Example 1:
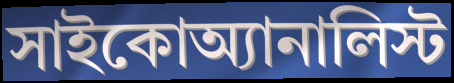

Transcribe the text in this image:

সাইকোঅ্যানালিস্ট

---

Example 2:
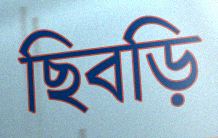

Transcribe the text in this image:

ছিবড়ি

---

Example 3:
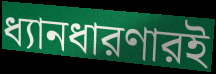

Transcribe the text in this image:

ধ্যানধারণারই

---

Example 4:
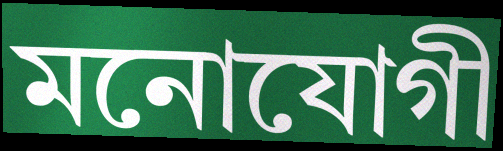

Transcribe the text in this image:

মনোযোগী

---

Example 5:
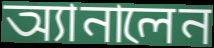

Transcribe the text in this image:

অ্যানালেন